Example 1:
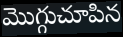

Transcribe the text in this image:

మొగ్గుచూపిన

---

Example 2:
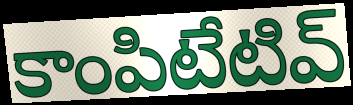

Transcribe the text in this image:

కాంపిటేటివ్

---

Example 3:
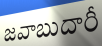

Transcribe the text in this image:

జవాబుదారీ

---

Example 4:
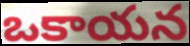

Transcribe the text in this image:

ఒకాయన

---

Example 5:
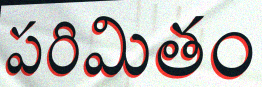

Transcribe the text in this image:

పరిమితం